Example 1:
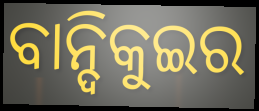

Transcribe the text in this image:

ବାନ୍ଦିକୁଇର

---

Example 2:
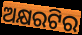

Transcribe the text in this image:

ଅକ୍ଷରଟିର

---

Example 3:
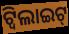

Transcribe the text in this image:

ଟ୍ୱିଲାଇଟ୍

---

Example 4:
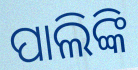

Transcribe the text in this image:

ପାଲିଙ୍କି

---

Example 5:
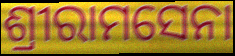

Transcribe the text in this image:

ଶ୍ରୀରାମସେନା